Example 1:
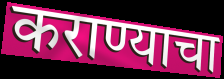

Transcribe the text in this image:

कराण्याचा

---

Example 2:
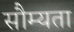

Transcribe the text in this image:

सौम्यता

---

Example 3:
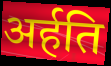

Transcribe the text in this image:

अर्हति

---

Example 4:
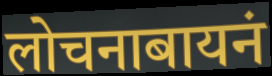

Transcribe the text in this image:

लोचनाबायनं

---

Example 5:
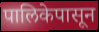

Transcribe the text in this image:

पालिकेपासून